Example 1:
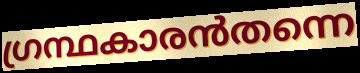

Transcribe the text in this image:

ഗ്രന്ഥകാരൻതന്നെ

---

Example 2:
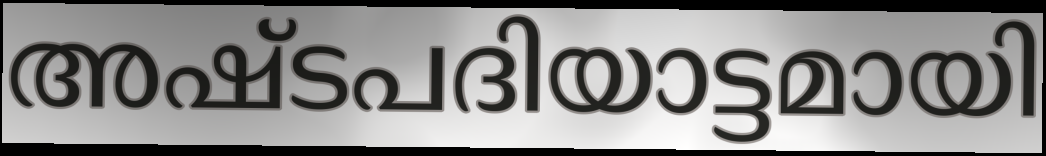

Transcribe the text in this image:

അഷ്ടപദിയാട്ടമായി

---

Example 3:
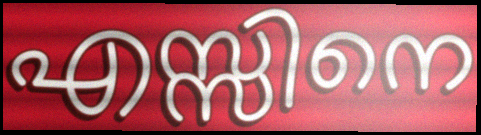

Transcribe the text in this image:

എസ്സിനെ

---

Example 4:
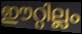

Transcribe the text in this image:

ഈറ്റില്ലം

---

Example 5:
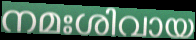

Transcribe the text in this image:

നമഃശിവായ